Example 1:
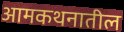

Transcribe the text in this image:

आमकथनातील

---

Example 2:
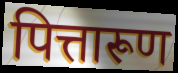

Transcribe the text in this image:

पित्तारूण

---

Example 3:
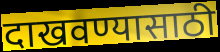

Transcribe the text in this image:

दाखवण्यासाठी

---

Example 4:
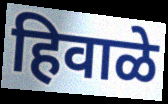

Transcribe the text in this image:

हिवाळे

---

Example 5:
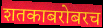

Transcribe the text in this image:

शतकाबरोबरच